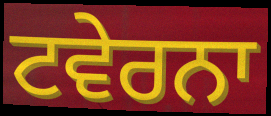
ਟਵੇਰਨਾ